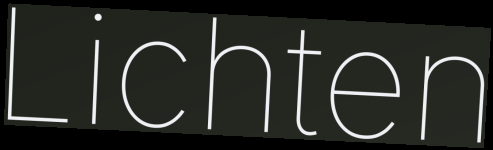
Lichten